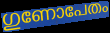
ഗുണോപേതം